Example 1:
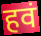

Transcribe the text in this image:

हवं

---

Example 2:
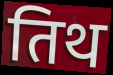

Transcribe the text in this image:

तिथ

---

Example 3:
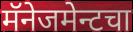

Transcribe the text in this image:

मॅनेजमेन्टचा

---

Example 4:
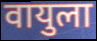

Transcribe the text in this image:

वायुला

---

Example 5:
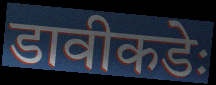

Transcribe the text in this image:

डावीकडेः